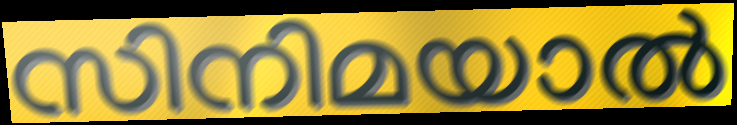
സിനിമയാൽ